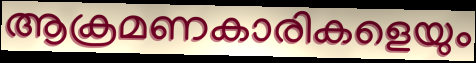
ആക്രമണകാരികളെയും